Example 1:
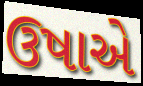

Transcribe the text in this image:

ઉષાએ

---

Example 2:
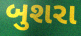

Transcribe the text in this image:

બુશરા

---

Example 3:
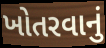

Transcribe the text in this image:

ખોતરવાનું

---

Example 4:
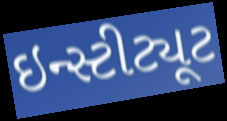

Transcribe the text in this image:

ઇન્સ્ટીટ્યૂટ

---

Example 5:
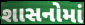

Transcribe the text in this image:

શાસનોમાં